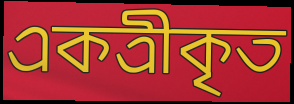
একত্রীকৃত